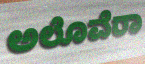
ಅಲೊವೆರಾ